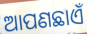
ଆପଣଛାଏଁ